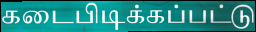
கடைபிடிக்கப்பட்டு